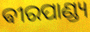
ଵୀରପାଣ୍ଡ୍ୟ